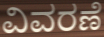
ವಿವರಣೆ